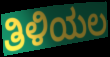
ತಿಳಿಯಲ